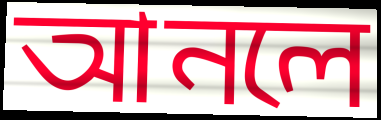
আনলে